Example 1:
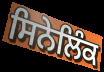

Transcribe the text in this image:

ਸਿਨੇਲਿੰਕ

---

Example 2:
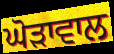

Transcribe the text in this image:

ਘੋੜਾਵਾਲ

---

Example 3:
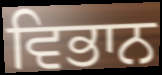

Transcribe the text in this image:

ਵਿਭਾਨ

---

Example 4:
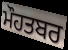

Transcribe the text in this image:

ਮੌਹਤਬਰ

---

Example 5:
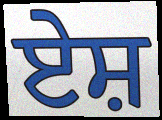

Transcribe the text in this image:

ਏਸ਼